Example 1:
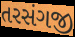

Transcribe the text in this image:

તરસંગજી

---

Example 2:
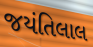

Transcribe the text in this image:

જયંતિલાલ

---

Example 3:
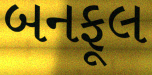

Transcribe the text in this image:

બનફૂલ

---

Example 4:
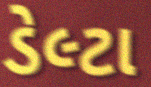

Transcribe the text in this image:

ડેલ્ટા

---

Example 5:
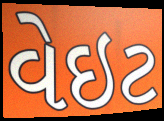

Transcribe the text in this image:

વેઇટ